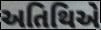
અતિથિએ